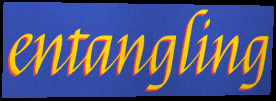
entangling